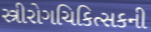
સ્ત્રીરોગચિકિત્સકની